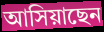
আসিয়াছেন